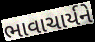
ભાવાચાર્યને